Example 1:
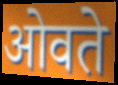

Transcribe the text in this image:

ओवते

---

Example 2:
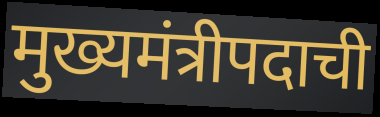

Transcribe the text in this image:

मुख्यमंत्रीपदाची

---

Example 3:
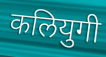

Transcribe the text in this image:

कलियुगी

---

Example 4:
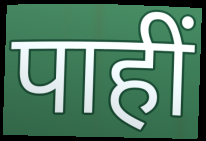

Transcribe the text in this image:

पाहीं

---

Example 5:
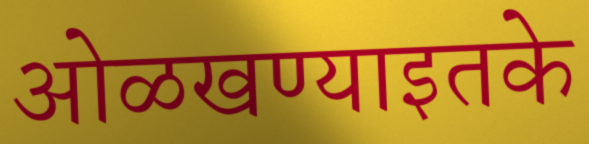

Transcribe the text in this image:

ओळखण्याइतके